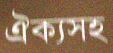
ঐক্যসহ